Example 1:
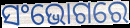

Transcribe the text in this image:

ସଂଭୋଗରେ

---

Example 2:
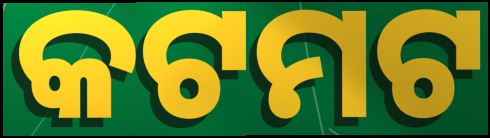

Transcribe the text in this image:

କଟମଟ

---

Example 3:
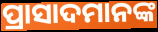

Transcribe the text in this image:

ପ୍ରାସାଦମାନଙ୍କ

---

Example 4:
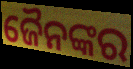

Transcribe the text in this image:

ଜୈନଙ୍କର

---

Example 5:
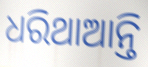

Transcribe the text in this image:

ଧରିଥାଆନ୍ତି